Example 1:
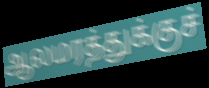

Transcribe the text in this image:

ஆலமரத்துக்குச்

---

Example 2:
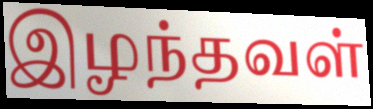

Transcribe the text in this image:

இழந்தவள்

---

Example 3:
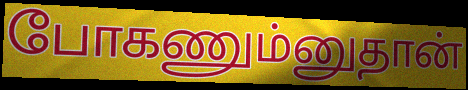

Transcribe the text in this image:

போகணும்னுதான்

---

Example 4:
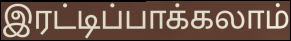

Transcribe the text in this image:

இரட்டிப்பாக்கலாம்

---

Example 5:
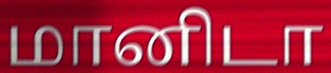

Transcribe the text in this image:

மானிடா